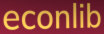
econlib